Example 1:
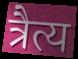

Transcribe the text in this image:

त्रैत्य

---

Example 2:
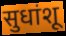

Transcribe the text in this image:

सुधांशू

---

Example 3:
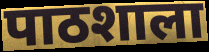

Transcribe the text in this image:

पाठशाला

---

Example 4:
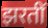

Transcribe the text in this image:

झरतीं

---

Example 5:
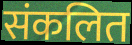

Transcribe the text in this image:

संकलित